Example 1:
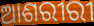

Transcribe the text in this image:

ଆଶରୀରୀ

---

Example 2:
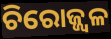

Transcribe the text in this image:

ଚିରୋଜ୍ଜ୍ଵଳ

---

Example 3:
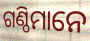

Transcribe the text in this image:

ଗଣ୍ଠିମାନେ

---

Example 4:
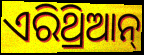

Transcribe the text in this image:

ଏରିଥ୍ରିଆନ୍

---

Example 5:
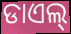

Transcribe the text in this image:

ଡାଏଲ୍